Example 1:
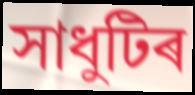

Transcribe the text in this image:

সাধুটিৰ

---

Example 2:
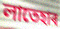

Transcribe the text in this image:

লাতেহাৰ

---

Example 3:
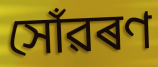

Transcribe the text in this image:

সোঁৱৰণ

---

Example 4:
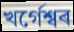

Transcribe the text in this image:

খৰ্গেশ্বৰ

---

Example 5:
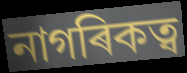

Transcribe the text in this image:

নাগৰিকত্ব